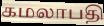
கமலாபதி